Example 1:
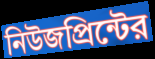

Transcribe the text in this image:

নিউজপ্রিন্টের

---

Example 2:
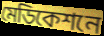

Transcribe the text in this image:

মেডিকেশনে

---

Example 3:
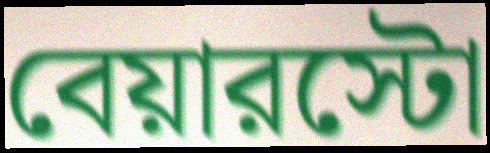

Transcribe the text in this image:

বেয়ারস্টো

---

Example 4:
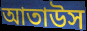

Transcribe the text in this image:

আতাউস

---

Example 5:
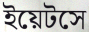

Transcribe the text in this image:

ইয়েটসে